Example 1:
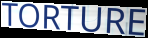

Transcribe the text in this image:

TORTURE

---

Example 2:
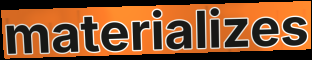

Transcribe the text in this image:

materializes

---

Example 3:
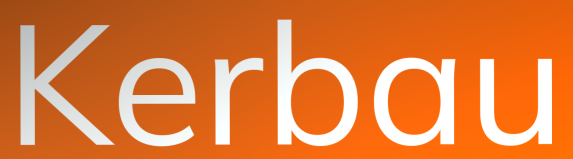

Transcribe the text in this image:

Kerbau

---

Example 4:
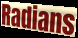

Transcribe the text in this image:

Radians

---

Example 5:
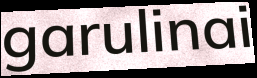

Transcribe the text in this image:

garulinai